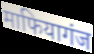
माफियागंज